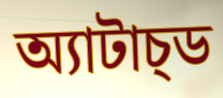
অ্যাটাচ্ড